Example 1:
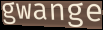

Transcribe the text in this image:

gwange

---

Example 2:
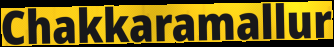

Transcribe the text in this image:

Chakkaramallur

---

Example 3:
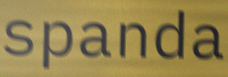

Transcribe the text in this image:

spanda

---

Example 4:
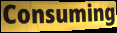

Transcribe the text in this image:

Consuming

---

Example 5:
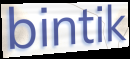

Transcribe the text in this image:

bintik